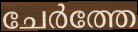
ചേർത്തേ